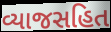
વ્યાજસહિત